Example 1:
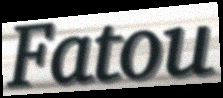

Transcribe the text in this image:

Fatou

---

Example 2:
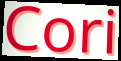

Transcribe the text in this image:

Cori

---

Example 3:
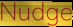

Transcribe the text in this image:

Nudge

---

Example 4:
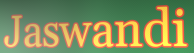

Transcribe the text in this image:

Jaswandi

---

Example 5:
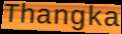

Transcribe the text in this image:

Thangka